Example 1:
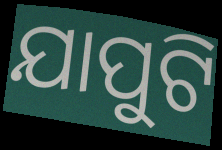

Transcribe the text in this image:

ଯାପୁଟି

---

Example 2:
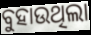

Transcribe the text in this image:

ବୁହାଉଥିଲା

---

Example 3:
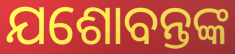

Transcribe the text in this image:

ଯଶୋବନ୍ତଙ୍କ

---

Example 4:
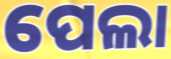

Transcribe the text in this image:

ପେଲା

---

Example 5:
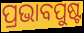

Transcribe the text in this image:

ପ୍ରଭାବପୁଷ୍ଟ